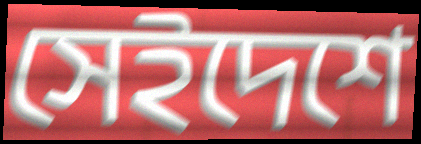
সেইদেশে